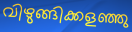
വിഴുങ്ങിക്കളഞ്ഞു